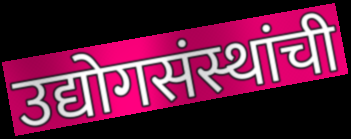
उद्योगसंस्थांची